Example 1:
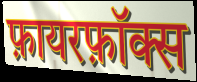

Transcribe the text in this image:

फ़ायरफ़ॉक्स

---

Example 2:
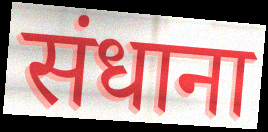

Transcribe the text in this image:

संधाना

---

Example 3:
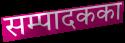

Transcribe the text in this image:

सम्पादकका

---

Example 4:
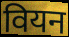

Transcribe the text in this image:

वियन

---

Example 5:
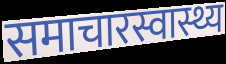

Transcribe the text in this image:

समाचारस्वास्थ्य